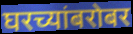
घरच्यांबरोबर